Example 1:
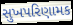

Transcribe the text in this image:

સુખપરિણામક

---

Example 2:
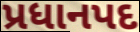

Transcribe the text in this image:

પ્રધાનપદ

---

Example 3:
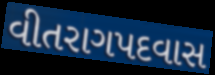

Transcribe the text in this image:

વીતરાગપદવાસ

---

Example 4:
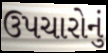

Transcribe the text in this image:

ઉપચારોનું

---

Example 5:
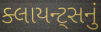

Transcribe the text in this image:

ક્લાયન્ટ્સનું